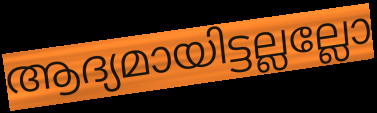
ആദ്യമായിട്ടല്ലല്ലോ